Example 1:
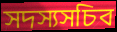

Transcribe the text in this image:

সদস্যসচিব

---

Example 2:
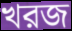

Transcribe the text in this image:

খরজ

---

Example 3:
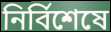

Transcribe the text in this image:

নির্বিশেষে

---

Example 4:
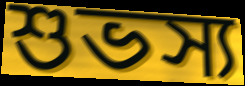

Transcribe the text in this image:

শুভস্য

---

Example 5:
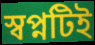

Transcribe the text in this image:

স্বপ্নটিই